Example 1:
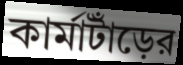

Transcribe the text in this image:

কার্মাটাঁড়ের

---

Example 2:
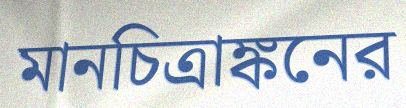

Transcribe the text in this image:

মানচিত্রাঙ্কনের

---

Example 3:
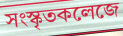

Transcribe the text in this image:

সংস্কৃতকলেজে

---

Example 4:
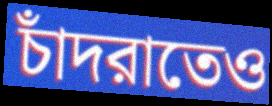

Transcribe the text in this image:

চাঁদরাতেও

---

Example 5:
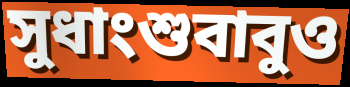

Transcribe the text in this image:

সুধাংশুবাবুও